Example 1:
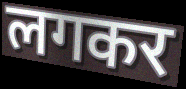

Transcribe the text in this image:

लगकर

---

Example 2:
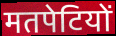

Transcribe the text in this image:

मतपेटियों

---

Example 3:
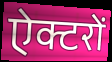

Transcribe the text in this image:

ऐक्टरों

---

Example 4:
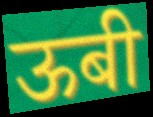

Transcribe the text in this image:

ऊबी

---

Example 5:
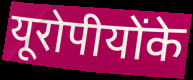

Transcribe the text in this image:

यूरोपीयोंके